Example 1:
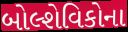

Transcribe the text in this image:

બોલ્શેવિકોના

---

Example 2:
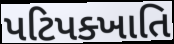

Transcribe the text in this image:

પટિપક્ખાતિ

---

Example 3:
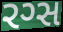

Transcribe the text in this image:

રગ્સ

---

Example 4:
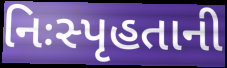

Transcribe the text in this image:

નિઃસ્પૃહતાની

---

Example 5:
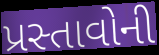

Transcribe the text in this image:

પ્રસ્તાવોની